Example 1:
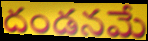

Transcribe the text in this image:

దండనమే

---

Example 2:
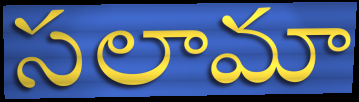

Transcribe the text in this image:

సలామా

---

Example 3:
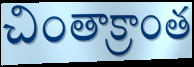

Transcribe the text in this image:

చింతాక్రాంత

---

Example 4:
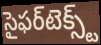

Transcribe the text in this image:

సైఫర్‌టెక్స్ట్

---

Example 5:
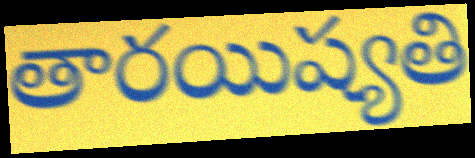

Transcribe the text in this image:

తారయిష్యతి